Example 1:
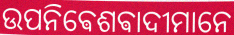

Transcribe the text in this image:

ଉପନିଵେଶଵାଦୀମାନେ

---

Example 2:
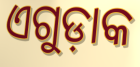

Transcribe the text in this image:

ଏଗୁଡ଼ାକ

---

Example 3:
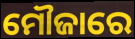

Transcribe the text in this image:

ମୌଜାରେ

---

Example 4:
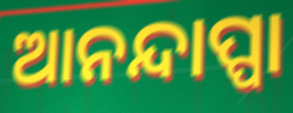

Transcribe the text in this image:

ଆନନ୍ଦାପ୍ପା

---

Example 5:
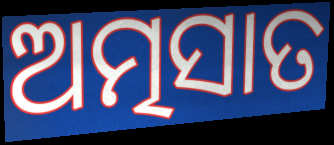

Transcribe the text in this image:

ଅତ୍ମସାତ